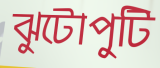
ঝুটোপুটি